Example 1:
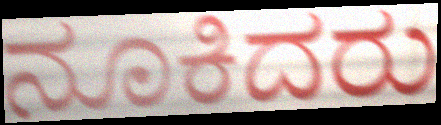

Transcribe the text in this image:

ನೂಕಿದರು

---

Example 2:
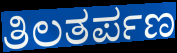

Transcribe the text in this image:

ತಿಲತರ್ಪಣ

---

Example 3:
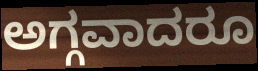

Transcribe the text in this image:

ಅಗ್ಗವಾದರೂ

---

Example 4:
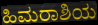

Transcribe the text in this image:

ಹಿಮರಾಶಿಯ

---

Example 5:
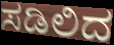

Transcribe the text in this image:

ಸಡಿಲಿದ